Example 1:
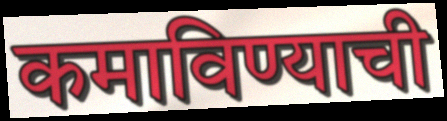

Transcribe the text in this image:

कमाविण्याची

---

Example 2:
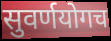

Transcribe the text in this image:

सुवर्णयोगच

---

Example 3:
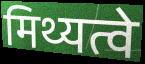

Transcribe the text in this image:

मिथ्यत्वे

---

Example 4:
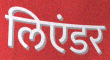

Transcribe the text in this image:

लिएंडर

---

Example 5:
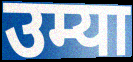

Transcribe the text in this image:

उम्या